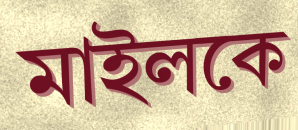
মাইলকে